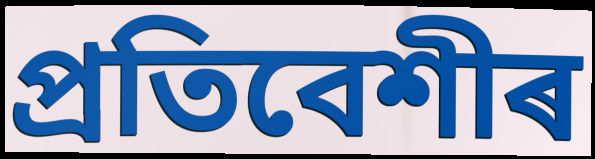
প্ৰতিবেশীৰ